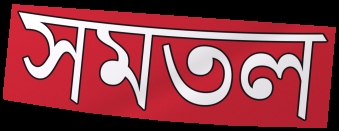
সমতল